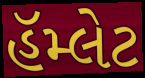
હૅમ્લેટ